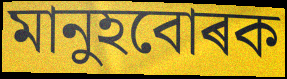
মানুহবোৰক